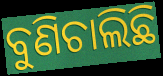
ବୁଣିଚାଲିଛି